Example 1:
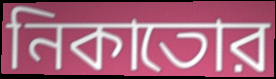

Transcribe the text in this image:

নিকাতোর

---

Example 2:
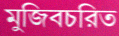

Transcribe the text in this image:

মুজিবচরিত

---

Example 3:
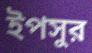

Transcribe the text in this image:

ইপসুর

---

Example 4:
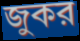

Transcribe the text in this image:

জুকর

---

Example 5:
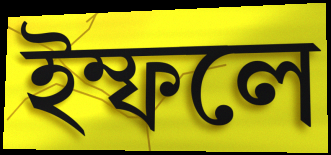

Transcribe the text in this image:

ইম্ফলে